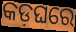
କଡ଼ଘରେ